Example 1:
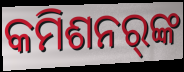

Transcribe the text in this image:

କମିଶନର୍‌ଙ୍କ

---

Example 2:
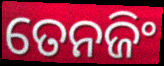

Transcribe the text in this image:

ତେନଜିଂ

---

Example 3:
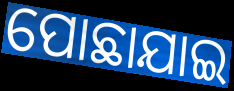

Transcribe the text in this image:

ପୋଛାଯାଇ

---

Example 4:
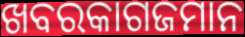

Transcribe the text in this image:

ଖବରକାଗଜମାନ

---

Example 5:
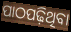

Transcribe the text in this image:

ପାଠପଢ଼ିଥିବା